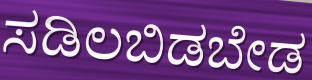
ಸಡಿಲಬಿಡಬೇಡ